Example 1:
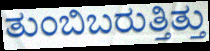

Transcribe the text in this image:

ತುಂಬಿಬರುತ್ತಿತ್ತು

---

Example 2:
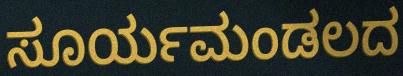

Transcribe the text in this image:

ಸೂರ್ಯಮಂಡಲದ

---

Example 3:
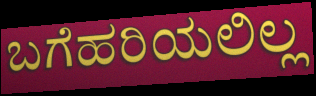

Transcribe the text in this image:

ಬಗೆಹರಿಯಲಿಲ್ಲ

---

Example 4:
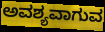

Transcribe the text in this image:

ಅವಶ್ಯವಾಗುವ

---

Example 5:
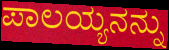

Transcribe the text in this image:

ಪಾಲಯ್ಯನನ್ನು